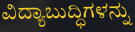
ವಿದ್ಯಾಬುದ್ಧಿಗಳನ್ನು